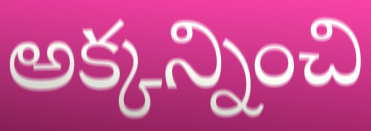
అక్కన్నించి